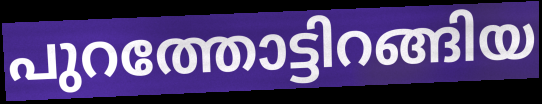
പുറത്തോട്ടിറങ്ങിയ